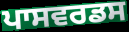
ਪਾਸਵਰਡਸ